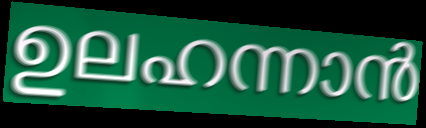
ഉലഹന്നാൻ